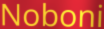
Noboni